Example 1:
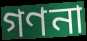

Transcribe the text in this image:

গণনা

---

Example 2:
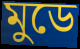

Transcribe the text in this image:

মুডে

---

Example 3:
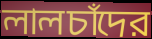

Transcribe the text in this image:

লালচাঁদের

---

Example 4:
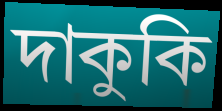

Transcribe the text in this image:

দাকুকি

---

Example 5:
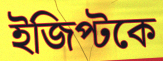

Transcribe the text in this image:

ইজিপ্টকে